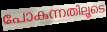
പോകുന്നതിലൂടെ